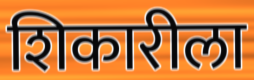
शिकारीला